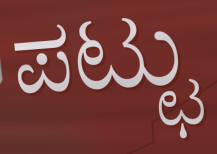
ಪಟ್ಟು